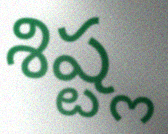
శిష్ట్ల